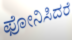
ಫೋನಿಸಿದರೆ